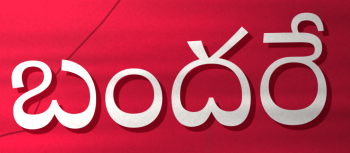
బందరే